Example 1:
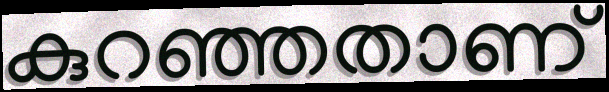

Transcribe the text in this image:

കുറഞ്ഞതാണ്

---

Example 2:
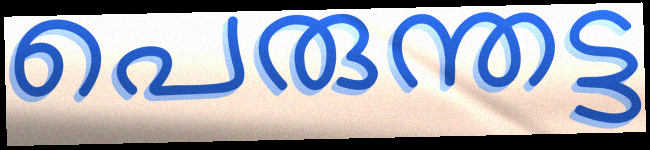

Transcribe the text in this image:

പെരുന്തട്ട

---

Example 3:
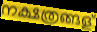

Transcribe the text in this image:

നക്ഷത്രങ്ങള്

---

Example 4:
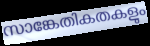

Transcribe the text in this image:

സാങ്കേതികതകളും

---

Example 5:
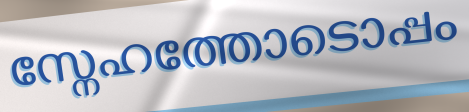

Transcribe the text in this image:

സ്നേഹത്തോടൊപ്പം